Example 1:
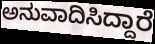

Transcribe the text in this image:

ಅನುವಾದಿಸಿದ್ದಾರೆ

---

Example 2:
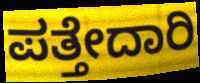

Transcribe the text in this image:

ಪತ್ತೇದಾರಿ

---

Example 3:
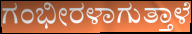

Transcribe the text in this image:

ಗಂಭೀರಳಾಗುತ್ತಾಳೆ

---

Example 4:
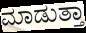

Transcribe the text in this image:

ಮಾಡುತ್ತಾ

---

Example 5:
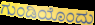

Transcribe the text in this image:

ಗುಂಡಿಯೊಂದು